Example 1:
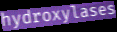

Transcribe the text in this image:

hydroxylases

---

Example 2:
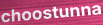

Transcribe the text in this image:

choostunna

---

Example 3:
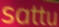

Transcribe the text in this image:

sattu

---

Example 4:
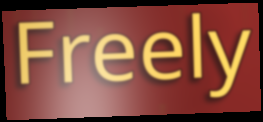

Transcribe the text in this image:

Freely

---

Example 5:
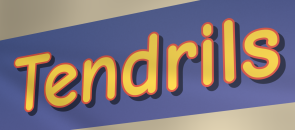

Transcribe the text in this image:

Tendrils